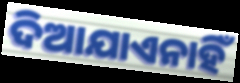
ଦିଆଯାଏନାହିଁ